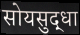
सोयसुद्धा